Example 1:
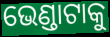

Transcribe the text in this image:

ଭେଣ୍ଡାଟାକୁ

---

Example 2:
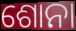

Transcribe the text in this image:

ଶୋନା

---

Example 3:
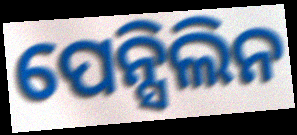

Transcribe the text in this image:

ପେନ୍ସିଲିନ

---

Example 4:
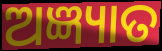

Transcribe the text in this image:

ଅଜ୍ଞ୍ୟାତ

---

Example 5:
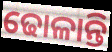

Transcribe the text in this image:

ଢୋଳାନ୍ତି